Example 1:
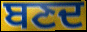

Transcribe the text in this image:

ਬਣਦ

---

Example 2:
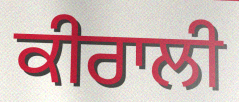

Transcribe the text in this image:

ਕੀਰਾਲੀ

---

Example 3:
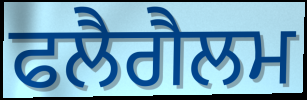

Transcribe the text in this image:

ਫਲੈਗੈਲਮ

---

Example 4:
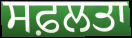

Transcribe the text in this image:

ਸਫ਼ਲਤਾ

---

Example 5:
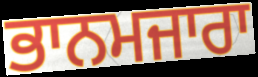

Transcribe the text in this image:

ਭਾਨਮਜਾਰਾ